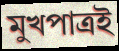
মুখপাত্রই